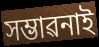
সম্ভাৱনাই